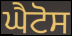
ਘੈਟੋਸ